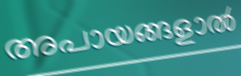
അപായങ്ങളാൽ